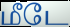
மீடே